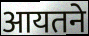
आयतने